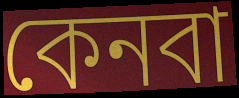
কেনবা